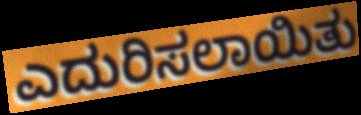
ಎದುರಿಸಲಾಯಿತು